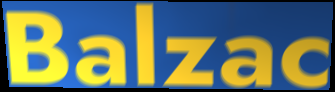
Balzac